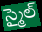
స్మైల్